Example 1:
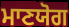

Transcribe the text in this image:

ਮਾਣਯੋਗ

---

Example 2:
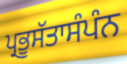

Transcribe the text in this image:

ਪ੍ਰਭੂਸੱਤਾਸੰਪੰਨ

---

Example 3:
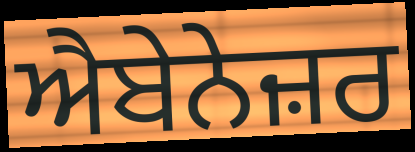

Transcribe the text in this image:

ਐਬੇਨੇਜ਼ਰ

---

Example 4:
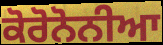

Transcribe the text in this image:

ਕੋਰੋਨੋਨੀਆ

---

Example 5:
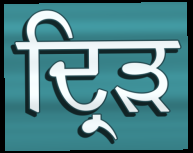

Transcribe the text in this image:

ਦ੍ਰਿੜ